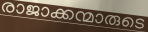
രാജാക്കന്മാരുടെ